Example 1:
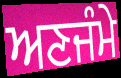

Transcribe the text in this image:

ਅਣਜੰਮੇ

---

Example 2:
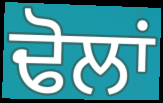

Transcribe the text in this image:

ਢੋਲਾਂ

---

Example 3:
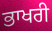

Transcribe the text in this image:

ਭਾਖਰੀ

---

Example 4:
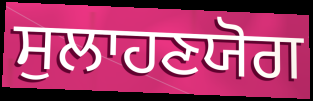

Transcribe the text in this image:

ਸੁਲਾਹਣਯੋਗ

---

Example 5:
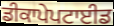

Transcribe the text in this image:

ਡੀਕਾਪੇਪਟਾਈਡ